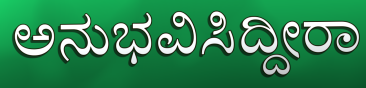
ಅನುಭವಿಸಿದ್ದೀರಾ